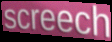
screech